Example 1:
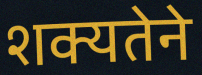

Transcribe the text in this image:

शक्यतेने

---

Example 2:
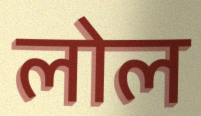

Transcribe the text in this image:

लोल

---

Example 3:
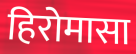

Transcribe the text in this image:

हिरोमासा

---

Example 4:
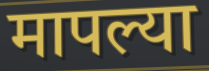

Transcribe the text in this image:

मापल्या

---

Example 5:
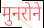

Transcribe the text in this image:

मुनरोने